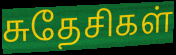
சுதேசிகள்